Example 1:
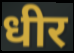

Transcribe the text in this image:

धीर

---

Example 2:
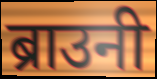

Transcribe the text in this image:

ब्राउनी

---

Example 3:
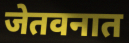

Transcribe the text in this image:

जेतवनात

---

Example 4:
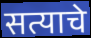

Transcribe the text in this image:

सत्याचे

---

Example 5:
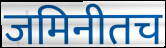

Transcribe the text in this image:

जमिनीतच